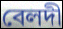
বেলদী